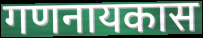
गणनायकास